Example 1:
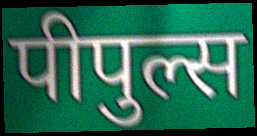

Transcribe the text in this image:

पीपुल्स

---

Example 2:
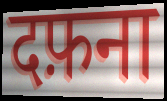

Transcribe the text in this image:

दफ़ना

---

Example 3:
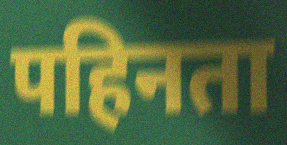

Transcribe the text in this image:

पहिनता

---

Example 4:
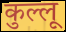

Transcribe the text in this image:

कुल्लू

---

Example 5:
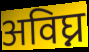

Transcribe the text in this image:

अविघ्न